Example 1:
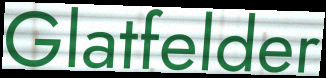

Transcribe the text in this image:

Glatfelder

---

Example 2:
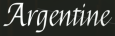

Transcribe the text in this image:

Argentine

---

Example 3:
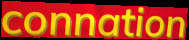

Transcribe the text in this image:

connation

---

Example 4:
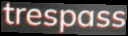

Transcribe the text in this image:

trespass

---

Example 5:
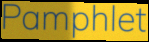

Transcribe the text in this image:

Pamphlet